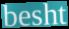
besht